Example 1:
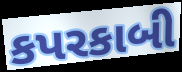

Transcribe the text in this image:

કપરકાબી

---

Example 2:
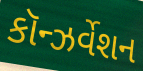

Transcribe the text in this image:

કૉન્ઝર્વેશન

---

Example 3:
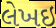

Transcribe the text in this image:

લેખઇ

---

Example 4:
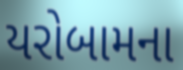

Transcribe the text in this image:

યરોબામના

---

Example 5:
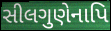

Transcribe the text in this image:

સીલગુણેનાપિ